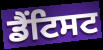
ਡੈਂਟਿਸਟ